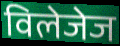
विलेजेज